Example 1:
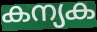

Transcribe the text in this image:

കന്യക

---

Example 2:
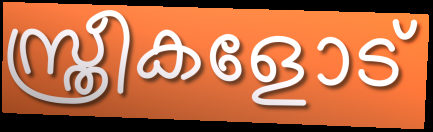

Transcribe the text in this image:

സ്ത്രീകളോട്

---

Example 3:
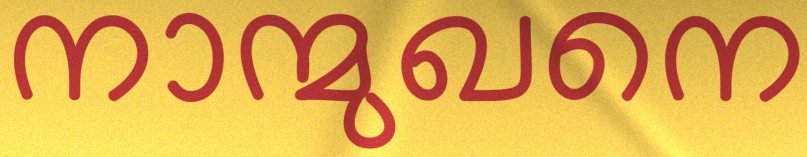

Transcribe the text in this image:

നാന്മുഖനെ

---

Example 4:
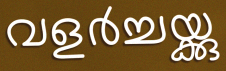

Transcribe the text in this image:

വളർച്ചയ്ക്കു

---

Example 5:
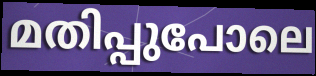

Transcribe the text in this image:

മതിപ്പുപോലെ